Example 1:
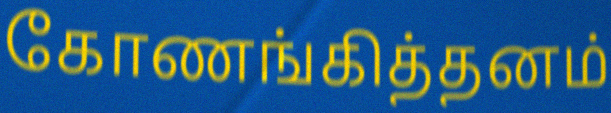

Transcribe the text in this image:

கோணங்கித்தனம்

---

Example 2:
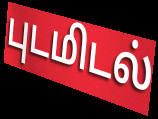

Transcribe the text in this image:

புடமிடல்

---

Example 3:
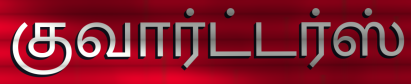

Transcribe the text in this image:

குவார்ட்டர்ஸ்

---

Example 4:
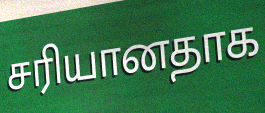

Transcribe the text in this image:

சரியானதாக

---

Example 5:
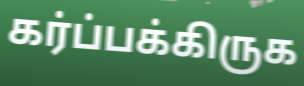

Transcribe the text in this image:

கர்ப்பக்கிருக